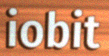
iobit